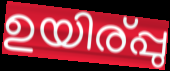
ഉയിര്പ്പു